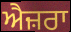
ਐਜ਼ਰਾ